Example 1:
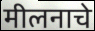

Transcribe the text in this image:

मीलनाचे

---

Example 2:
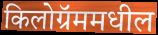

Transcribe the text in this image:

किलोग्रॅममधील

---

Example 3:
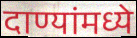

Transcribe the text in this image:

दाण्यांमध्ये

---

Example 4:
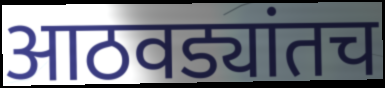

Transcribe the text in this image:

आठवड्यांतच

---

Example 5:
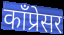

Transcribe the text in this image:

काँप्रेसर